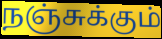
நஞ்சுக்கும்